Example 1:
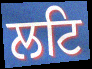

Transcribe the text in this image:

ਲਟਿ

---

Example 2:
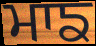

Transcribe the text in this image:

ਮਾਙ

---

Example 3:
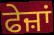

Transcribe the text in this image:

ਫੇਜ਼ਾਂ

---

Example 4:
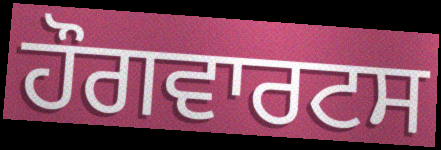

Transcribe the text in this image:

ਹੌਗਵਾਰਟਸ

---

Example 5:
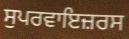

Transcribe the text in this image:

ਸੁਪਰਵਾਇਜ਼ਰਸ